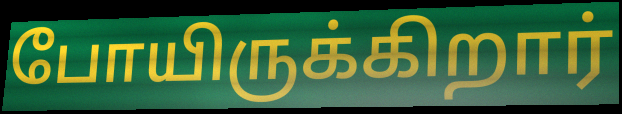
போயிருக்கிறார்